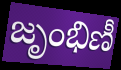
జృంభిణీ